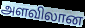
அளவிலான